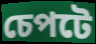
চেপটে